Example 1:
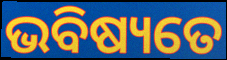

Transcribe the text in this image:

ଭବିଷ୍ୟତେ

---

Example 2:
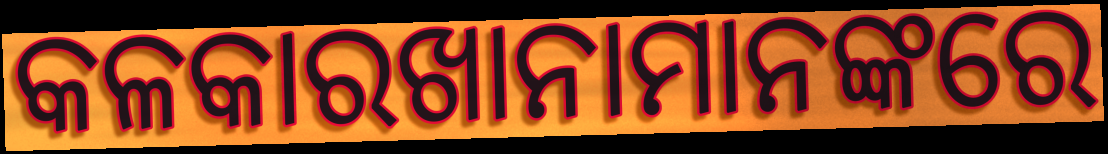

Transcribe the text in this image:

କଳକାରଖାନାମାନଙ୍କରେ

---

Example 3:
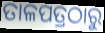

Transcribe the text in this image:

ତାଳପତ୍ରଠାରୁ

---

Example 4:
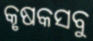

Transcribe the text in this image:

କୃଷକସବୁ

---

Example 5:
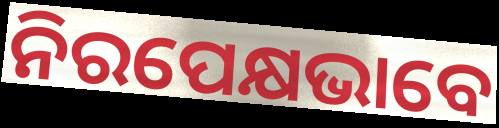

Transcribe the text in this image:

ନିରପେକ୍ଷଭାବେ